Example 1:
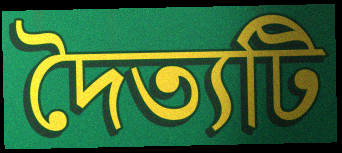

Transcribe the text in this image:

দৈত্যটি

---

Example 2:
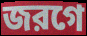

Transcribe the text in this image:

জরগে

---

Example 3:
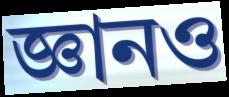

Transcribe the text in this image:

জ্ঞানও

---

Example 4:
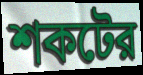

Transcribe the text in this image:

শকটের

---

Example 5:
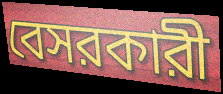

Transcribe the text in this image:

বেসরকারী